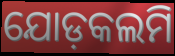
ଯୋଡ଼କଲମି